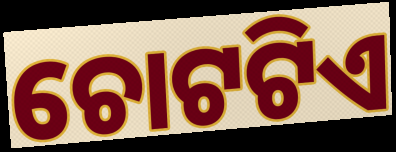
ଚୋଟଟିଏ